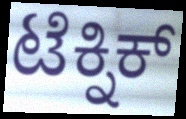
ಟೆಕ್ನಿಕ್